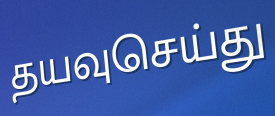
தயவுசெய்து